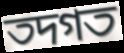
তদগত